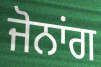
ਜੋਨਾਂਗ